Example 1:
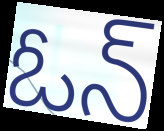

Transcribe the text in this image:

ఓన్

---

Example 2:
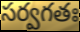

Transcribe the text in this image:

సర్వగతః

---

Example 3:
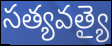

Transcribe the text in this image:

సత్యవత్యై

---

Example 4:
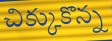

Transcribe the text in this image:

చిక్కుకొన్న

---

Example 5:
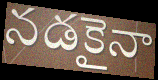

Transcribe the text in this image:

నడకైనా